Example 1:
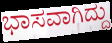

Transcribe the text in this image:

ಭಾಸವಾಗಿದ್ದು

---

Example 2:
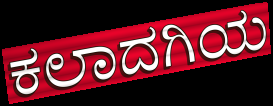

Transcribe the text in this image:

ಕಲಾದಗಿಯ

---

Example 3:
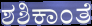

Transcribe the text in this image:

ಶಶಿಕಾಂತೆ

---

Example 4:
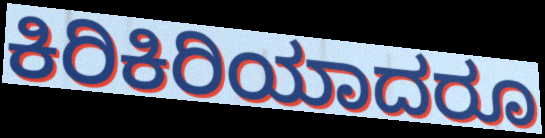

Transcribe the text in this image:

ಕಿರಿಕಿರಿಯಾದರೂ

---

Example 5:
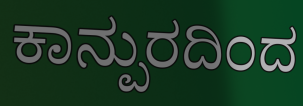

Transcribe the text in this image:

ಕಾನ್ಪುರದಿಂದ